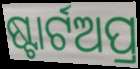
ଷ୍ଟାର୍ଟଅପ୍ର